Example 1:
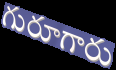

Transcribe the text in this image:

గురూగారు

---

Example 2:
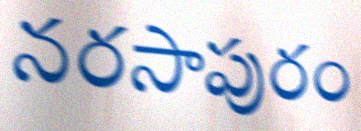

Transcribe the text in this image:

నరసాపురం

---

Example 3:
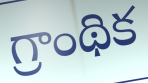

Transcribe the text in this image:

గ్రాంథిక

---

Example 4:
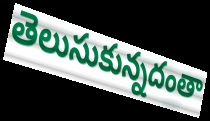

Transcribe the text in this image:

తెలుసుకున్నదంతా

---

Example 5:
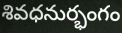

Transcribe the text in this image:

శివధనుర్భంగం